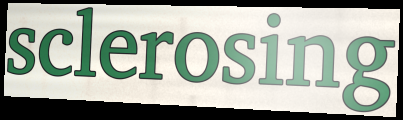
sclerosing